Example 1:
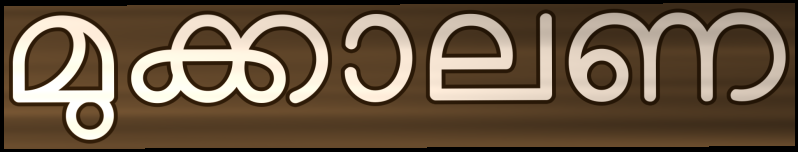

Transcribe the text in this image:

മുക്കാലണ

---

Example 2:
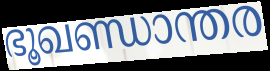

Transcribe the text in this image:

ഭൂഖണ്ഡാന്തര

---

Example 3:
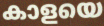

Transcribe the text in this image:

കാളയെ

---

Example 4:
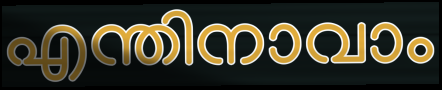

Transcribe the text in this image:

എന്തിനാവാം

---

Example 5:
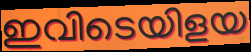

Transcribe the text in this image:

ഇവിടെയിളയ